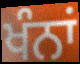
ਖੰਨਾਂ